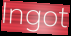
Ingot